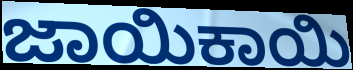
ಜಾಯಿಕಾಯಿ